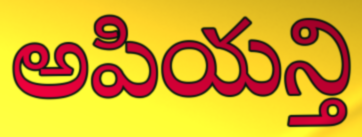
అపియన్తి